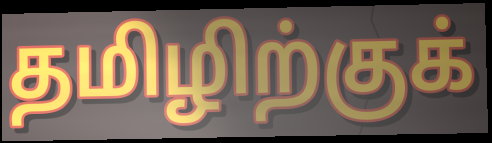
தமிழிற்குக்